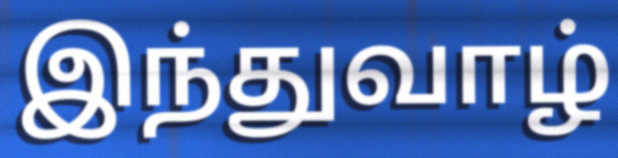
இந்துவாழ்